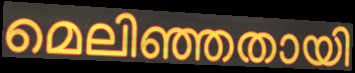
മെലിഞ്ഞതായി